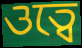
ওত্বে